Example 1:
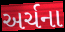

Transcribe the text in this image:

અર્ચના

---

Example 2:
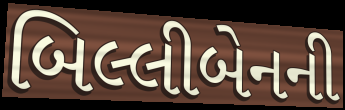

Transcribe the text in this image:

બિલ્લીબેનની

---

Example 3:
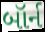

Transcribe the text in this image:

બૉર્ન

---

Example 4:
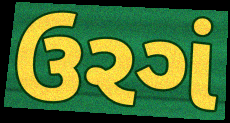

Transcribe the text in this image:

ઉરગં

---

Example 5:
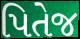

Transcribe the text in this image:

પિતેજ